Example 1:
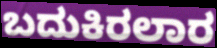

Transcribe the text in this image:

ಬದುಕಿರಲಾರ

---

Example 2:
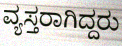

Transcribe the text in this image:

ವ್ಯಸ್ತರಾಗಿದ್ದರು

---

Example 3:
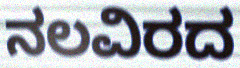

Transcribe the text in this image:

ನಲವಿರದ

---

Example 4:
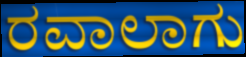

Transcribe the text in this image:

ರವಾಲಾಗು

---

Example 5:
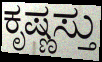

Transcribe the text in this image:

ಕೃಷ್ಣಸ್ತು